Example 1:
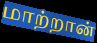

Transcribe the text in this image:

மாற்றான்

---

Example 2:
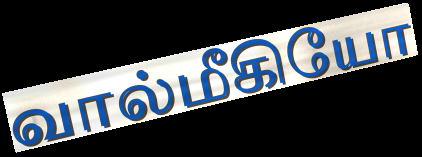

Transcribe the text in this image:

வால்மீகியோ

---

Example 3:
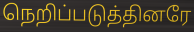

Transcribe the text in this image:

நெறிப்படுத்தினரே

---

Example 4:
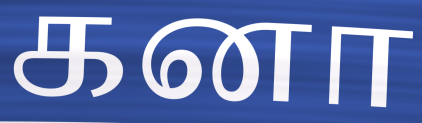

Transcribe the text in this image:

கனா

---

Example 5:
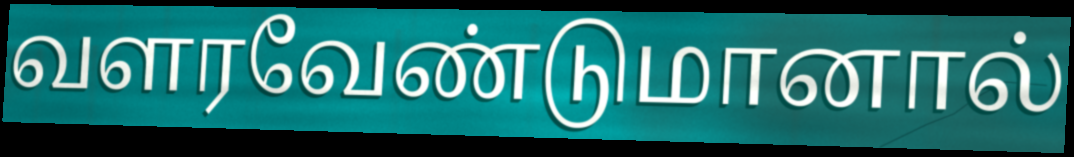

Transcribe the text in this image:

வளரவேண்டுமானால்